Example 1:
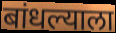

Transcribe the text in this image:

बांधल्याला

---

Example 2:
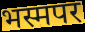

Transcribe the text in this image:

भस्मपर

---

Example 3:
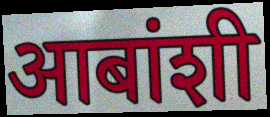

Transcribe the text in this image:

आबांशी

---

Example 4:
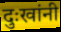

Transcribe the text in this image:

दुःखांनी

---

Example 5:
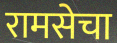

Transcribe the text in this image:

रामसेचा